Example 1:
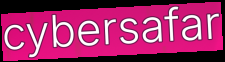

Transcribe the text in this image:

cybersafar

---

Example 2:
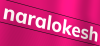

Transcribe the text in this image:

naralokesh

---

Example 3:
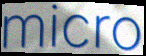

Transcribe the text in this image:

micro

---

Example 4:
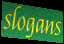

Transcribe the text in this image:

slogans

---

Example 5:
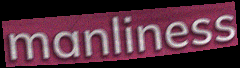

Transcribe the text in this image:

manliness